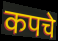
कपचे